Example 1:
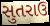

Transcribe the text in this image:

સુતરાઉ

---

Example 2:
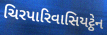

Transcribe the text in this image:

ચિરપારિવાસિયટ્ઠેન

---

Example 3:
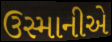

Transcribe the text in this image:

ઉસ્માનીએ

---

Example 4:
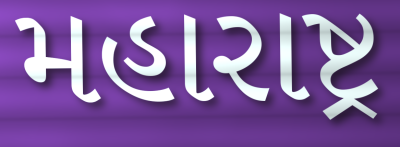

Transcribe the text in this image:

મહારાષ્ટ્ર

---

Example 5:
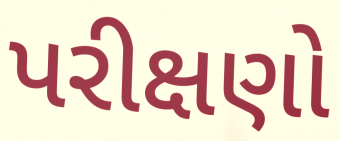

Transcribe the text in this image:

પરીક્ષણો